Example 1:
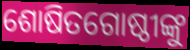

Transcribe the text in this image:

ଶୋଷିତଗୋଷ୍ଠୀଙ୍କୁ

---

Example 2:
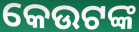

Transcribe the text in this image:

କେଉଟଙ୍କ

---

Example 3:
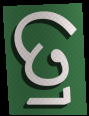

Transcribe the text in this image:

ତ୍ର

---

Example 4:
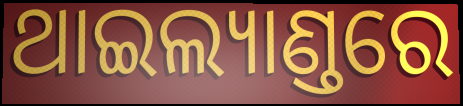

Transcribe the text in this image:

ଥାଇଲ୍ୟାଣ୍ଡରେ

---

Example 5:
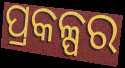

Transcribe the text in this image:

ପ୍ରକଳ୍ପର